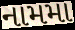
નામમા